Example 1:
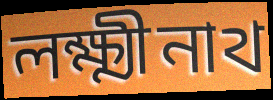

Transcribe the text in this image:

লক্ষ্মীনাথ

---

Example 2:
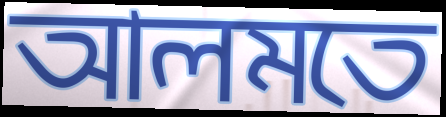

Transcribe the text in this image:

আলমতে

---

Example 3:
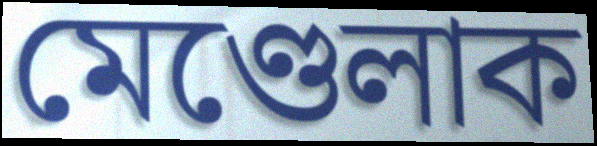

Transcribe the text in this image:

মেণ্ডেলাক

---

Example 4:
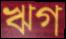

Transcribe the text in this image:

ঋগ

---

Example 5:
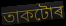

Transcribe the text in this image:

তাকটোৰ